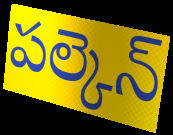
పల్కెన్